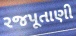
રજપૂતાણી